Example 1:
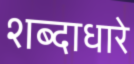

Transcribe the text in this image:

शब्दाधारे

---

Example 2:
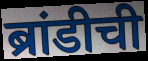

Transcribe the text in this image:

ब्रांडीची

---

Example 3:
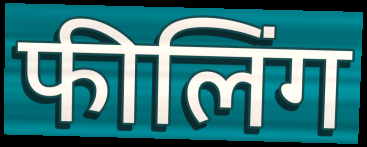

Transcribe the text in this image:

फीलिंग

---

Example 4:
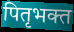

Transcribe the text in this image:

पितृभक्त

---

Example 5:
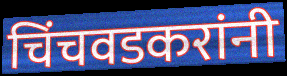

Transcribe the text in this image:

चिंचवडकरांनी